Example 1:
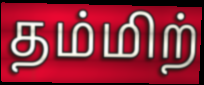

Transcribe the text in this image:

தம்மிற்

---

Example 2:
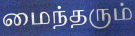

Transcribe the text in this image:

மைந்தரும்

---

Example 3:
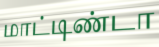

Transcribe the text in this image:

மாட்டிண்டா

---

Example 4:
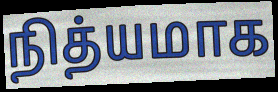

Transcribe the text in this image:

நித்யமாக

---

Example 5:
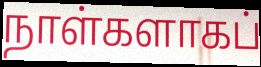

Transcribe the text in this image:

நாள்களாகப்